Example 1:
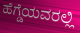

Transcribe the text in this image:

ಹೆಗ್ಡೆಯವರಲ್ಲಿ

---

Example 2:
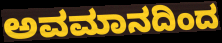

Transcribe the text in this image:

ಅವಮಾನದಿಂದ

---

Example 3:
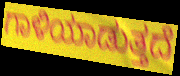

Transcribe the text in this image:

ಗಾಳಿಯಾಡುತ್ತದೆ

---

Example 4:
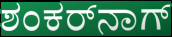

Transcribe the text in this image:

ಶಂಕರ್‌ನಾಗ್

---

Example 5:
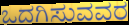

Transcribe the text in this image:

ಒದಗಿಸುವವರ